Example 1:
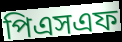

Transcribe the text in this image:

পিএসএফ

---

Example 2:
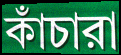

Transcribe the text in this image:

কাঁচারা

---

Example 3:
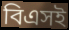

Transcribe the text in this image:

বিএসই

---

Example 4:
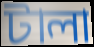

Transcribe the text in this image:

টালা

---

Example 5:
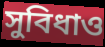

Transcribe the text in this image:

সুবিধাও